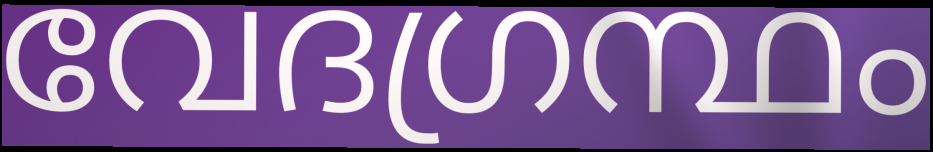
വേദഗ്രന്ഥം